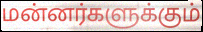
மன்னர்களுக்கும்